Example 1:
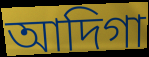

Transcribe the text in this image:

আদিগা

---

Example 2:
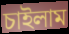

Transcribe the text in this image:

চাইলাম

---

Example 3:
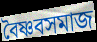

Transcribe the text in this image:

বৈষ্ণবসমাজ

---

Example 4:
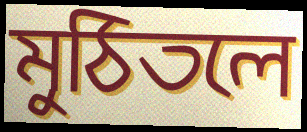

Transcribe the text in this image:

মুঠিতলে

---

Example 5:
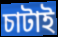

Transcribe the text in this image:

চাটাই